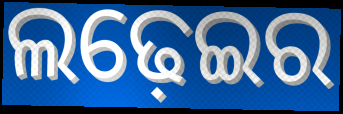
ଲଢ଼େଇର